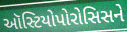
ઑસ્ટિયોપોરોસિસને